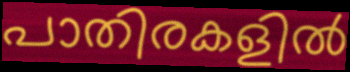
പാതിരകളിൽ